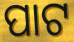
ପାଟ